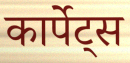
कार्पेट्स